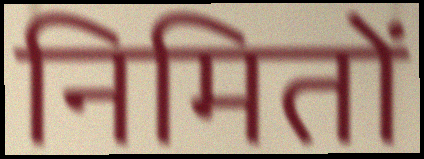
निमितों